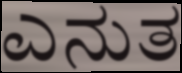
ಎನುತ